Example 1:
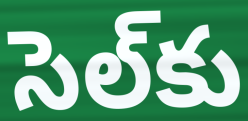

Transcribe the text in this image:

సెల్‌కు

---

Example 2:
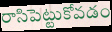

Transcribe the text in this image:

రాసిపెట్టుకోవడం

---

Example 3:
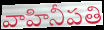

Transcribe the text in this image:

వాహినీపతి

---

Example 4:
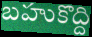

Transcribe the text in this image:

బహుకొద్ది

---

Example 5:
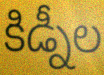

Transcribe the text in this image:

కిడ్నీల